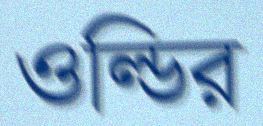
ওল্ডির